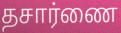
தசார்ணை